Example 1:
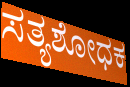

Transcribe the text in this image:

ಸತ್ಯಶೋಧಕ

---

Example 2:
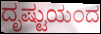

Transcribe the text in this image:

ದೃಷ್ಟುಯಂದ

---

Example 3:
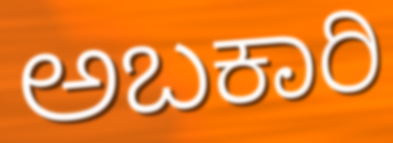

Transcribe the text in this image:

ಅಬಕಾರಿ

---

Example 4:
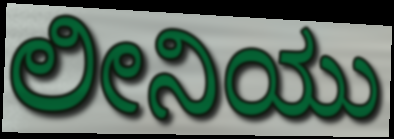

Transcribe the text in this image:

ಲೀನಿಯು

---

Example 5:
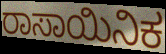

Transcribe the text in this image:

ರಾಸಾಯಿನಿಕ